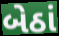
બેઠાં